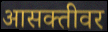
आसक्तीवर